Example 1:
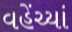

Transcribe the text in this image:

વહેંચ્યાં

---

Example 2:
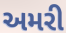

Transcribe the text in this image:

અમરી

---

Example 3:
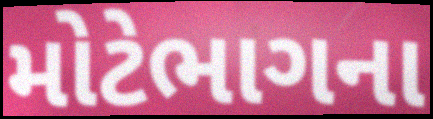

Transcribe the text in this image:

મોટેભાગના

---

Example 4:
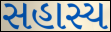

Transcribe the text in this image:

સહાસ્ય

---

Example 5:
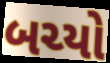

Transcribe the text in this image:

બચ્યો